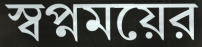
স্বপ্নময়ের